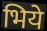
भिये